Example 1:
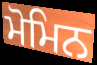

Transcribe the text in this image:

ਮੋਮਿਨ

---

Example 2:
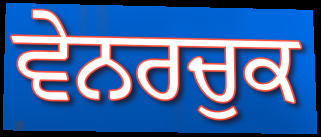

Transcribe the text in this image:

ਵੇਨਰਚੁਕ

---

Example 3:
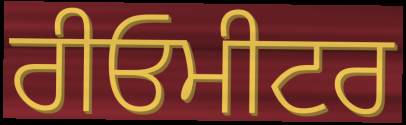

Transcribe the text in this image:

ਰੀਓਮੀਟਰ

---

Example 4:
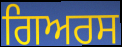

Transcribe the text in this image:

ਗਿਅਰਸ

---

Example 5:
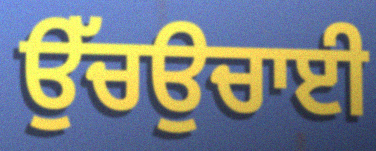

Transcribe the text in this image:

ਉੱਚਉਚਾਈ